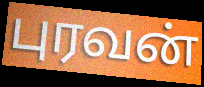
புரவன்